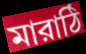
মারাঠি